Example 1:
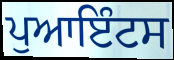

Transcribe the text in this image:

ਪੁਆਇੰਟਸ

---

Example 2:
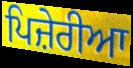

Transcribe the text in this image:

ਪਿਜ਼ੇਰੀਆ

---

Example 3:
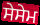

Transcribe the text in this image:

ਸੇਸੇਮ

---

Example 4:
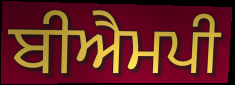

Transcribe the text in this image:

ਬੀਐਮਪੀ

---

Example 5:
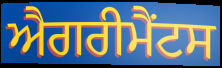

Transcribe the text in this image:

ਐਗਰੀਮੈਂਟਸ